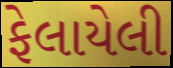
ફેલાયેલી